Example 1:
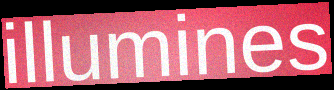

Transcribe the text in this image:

illumines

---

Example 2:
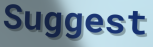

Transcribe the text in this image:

Suggest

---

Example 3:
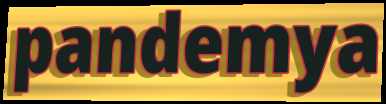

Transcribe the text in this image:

pandemya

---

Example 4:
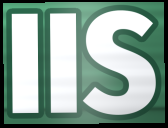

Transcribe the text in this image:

IIS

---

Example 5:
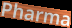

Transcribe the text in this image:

Pharma